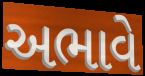
અભાવે